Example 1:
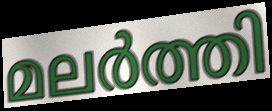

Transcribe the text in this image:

മലർത്തി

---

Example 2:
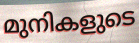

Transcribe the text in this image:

മുനികളുടെ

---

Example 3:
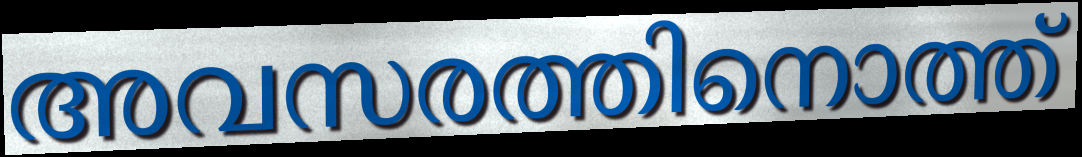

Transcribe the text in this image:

അവസരത്തിനൊത്ത്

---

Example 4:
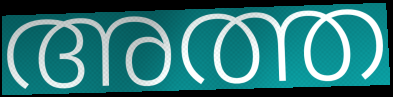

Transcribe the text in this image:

അത്ത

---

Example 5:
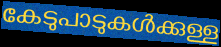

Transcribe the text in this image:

കേടുപാടുകൾക്കുള്ള